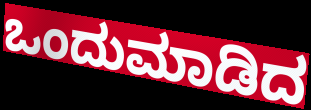
ಒಂದುಮಾಡಿದ